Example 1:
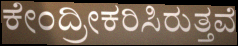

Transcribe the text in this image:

ಕೇಂದ್ರೀಕರಿಸಿರುತ್ತವೆ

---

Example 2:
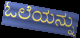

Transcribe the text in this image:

ಓಲೆಯನ್ನು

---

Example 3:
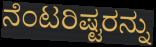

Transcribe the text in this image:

ನೆಂಟರಿಷ್ಟರನ್ನು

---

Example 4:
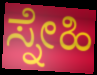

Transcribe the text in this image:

ಸ್ನೇಹಿ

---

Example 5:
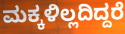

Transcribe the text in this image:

ಮಕ್ಕಳಿಲ್ಲದಿದ್ದರೆ